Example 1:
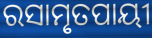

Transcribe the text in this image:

ରସାମୃତପାୟୀ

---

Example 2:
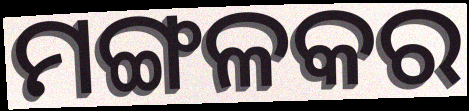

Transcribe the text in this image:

ମଙ୍ଗଳକର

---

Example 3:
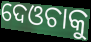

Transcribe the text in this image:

ଦେଓଚାକୁ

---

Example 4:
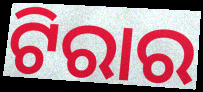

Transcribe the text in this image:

ଟିରାର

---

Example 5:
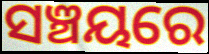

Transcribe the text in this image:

ସଞ୍ଚୟରେ